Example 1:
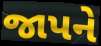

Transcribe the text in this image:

જાપને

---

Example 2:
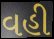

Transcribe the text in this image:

વહી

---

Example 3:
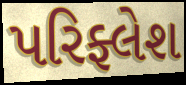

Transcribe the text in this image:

પરિફ્લેશ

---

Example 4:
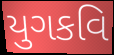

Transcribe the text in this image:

યુગકવિ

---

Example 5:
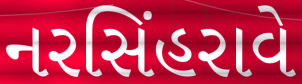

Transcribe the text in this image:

નરસિંહરાવે